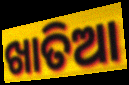
ଖାତିଆ